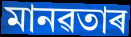
মানৱতাৰ